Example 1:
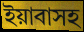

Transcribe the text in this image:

ইয়াবাসহ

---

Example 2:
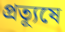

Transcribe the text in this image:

প্রত্যূষে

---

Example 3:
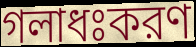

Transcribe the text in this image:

গলাধঃকরণ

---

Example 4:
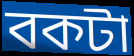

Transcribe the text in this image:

বকটা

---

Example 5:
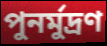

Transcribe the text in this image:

পুনর্মুদ্রণ